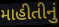
માહીતીનું